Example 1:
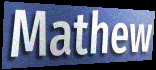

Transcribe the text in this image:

Mathew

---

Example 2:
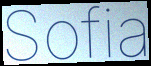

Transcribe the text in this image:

Sofia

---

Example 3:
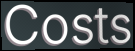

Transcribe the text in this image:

Costs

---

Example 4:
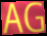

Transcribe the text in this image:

AG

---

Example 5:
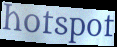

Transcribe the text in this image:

hotspot